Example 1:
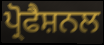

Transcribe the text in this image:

ਪ੍ਰੋਫੈਸ਼ਨਲ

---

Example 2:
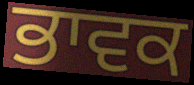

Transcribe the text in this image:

ਭਾਵਕ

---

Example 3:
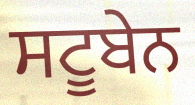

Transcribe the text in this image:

ਸਟੂਬੇਨ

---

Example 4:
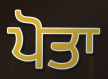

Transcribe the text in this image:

ਪੋਤਾ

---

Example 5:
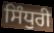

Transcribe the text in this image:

ਸਿੰਧੁਰੀ